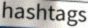
hashtags